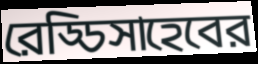
রেড্ডিসাহেবের